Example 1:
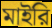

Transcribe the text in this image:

মাইরি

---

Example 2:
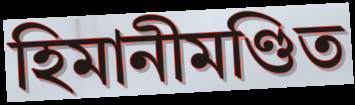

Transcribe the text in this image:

হিমানীমণ্ডিত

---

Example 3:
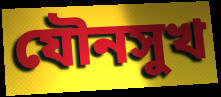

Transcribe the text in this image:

যৌনসুখ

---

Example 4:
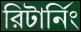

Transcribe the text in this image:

রিটার্নিং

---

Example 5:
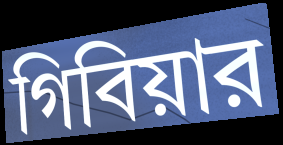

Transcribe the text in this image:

গিবিয়ার